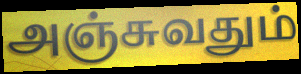
அஞ்சுவதும்